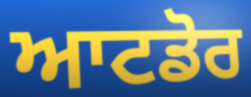
ਆਟਡੋਰ